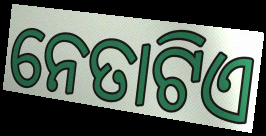
ନେତାଟିଏ